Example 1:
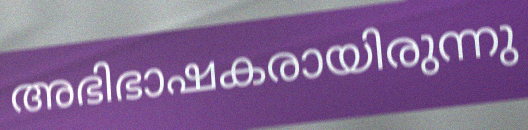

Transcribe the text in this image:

അഭിഭാഷകരായിരുന്നു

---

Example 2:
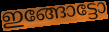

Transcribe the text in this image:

ഇങ്ങോട്ടോ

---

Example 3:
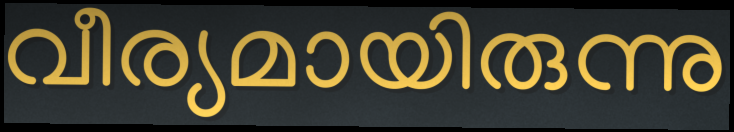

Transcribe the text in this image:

വീര്യമായിരുന്നു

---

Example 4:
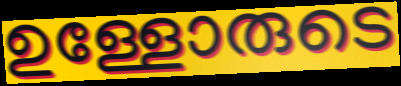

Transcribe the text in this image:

ഉള്ളോരുടെ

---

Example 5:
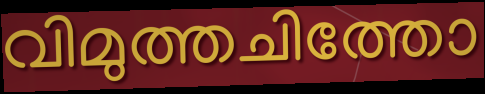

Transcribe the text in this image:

വിമുത്തചിത്തോ